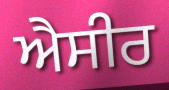
ਐਸੀਰ